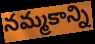
నమ్మకాన్ని